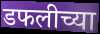
डफलीच्या